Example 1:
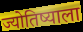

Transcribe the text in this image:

ज्योतिष्याला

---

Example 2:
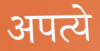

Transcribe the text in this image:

अपत्ये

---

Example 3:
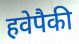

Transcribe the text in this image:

हवेपैकी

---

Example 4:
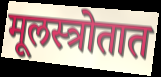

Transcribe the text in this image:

मूलस्त्रोतात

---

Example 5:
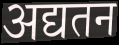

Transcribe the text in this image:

अद्यतन